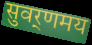
सुवर्णमय